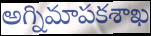
అగ్నిమాపకశాఖ